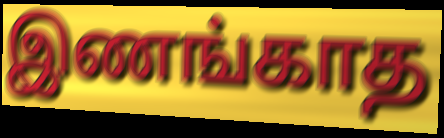
இணங்காத